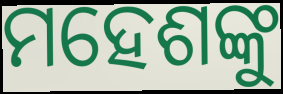
ମହେଶଙ୍କୁ